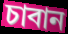
চাবান